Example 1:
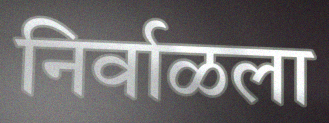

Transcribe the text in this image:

निर्वाळला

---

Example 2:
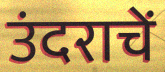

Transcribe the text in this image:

उंदराचें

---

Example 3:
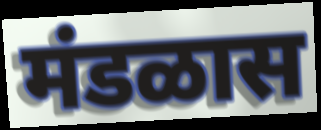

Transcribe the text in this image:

मंडळास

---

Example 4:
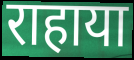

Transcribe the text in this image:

राहाया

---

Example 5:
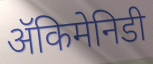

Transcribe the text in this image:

ॲकिमेनिडी